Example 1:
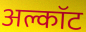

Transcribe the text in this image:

अल्कॉट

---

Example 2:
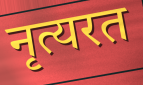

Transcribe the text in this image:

नृत्यरत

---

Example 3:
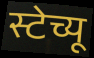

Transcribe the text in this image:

स्टेच्यू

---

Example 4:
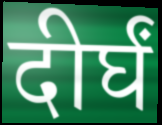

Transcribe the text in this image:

दीर्घं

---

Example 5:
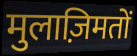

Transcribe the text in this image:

मुलाज़िमतों